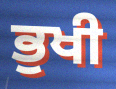
ਭੁਖੀ